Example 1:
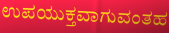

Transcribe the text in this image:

ಉಪಯುಕ್ತವಾಗುವಂತಹ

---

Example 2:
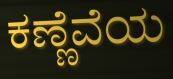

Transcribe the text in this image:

ಕಣ್ಣೆವೆಯ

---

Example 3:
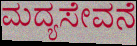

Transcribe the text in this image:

ಮದ್ಯಸೇವನೆ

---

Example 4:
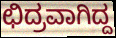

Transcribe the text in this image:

ಛಿದ್ರವಾಗಿದ್ದ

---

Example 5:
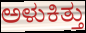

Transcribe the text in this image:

ಅಳುಕಿತ್ತು